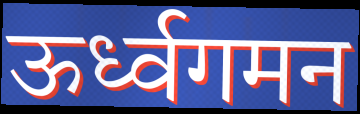
ऊर्ध्वगमन